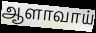
ஆளாவாய்